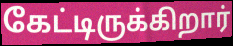
கேட்டிருக்கிறார்